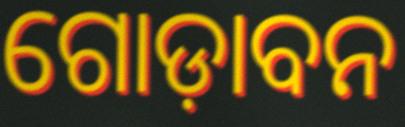
ଗୋଡ଼ାବନ